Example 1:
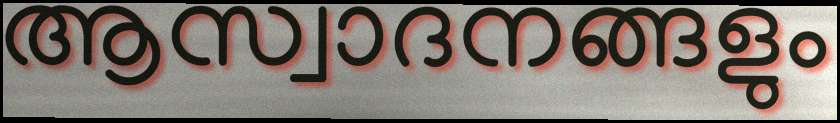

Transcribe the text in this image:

ആസ്വാദനങ്ങളും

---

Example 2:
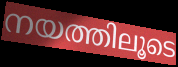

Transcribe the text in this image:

നയത്തിലൂടെ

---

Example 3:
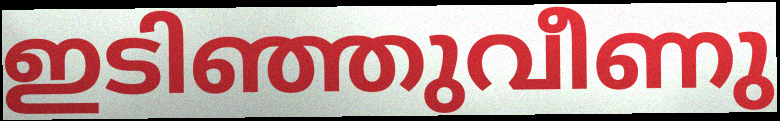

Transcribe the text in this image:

ഇടിഞ്ഞുവീണു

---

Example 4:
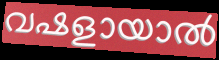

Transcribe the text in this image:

വഷളായാൽ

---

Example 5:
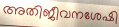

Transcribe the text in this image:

അതിജീവനശേഷി